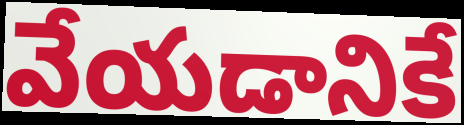
వేయడానికే